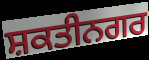
ਸ਼ਕਤੀਨਗਰ